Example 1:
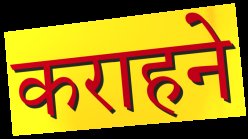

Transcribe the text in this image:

कराहने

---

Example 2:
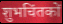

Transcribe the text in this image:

शुभचिंतकों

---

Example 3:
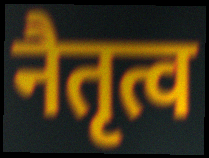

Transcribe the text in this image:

नैतृत्व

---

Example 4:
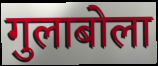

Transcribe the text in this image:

गुलाबोला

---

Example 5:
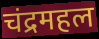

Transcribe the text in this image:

चंद्रमहल